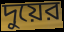
দুয়ের